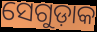
ସେଗୁଡ଼ାକ